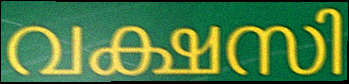
വക്ഷസി